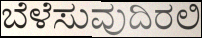
ಬೆಳೆಸುವುದಿರಲಿ